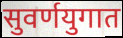
सुवर्णयुगात